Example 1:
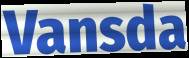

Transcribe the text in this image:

Vansda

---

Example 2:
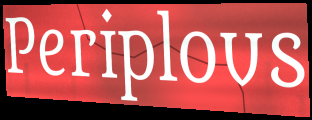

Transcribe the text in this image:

Periplous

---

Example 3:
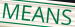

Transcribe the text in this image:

MEANS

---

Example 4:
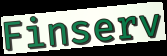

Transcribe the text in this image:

Finserv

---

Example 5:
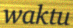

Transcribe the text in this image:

waktu